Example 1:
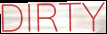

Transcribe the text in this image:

DIRTY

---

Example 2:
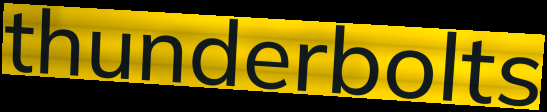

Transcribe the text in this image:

thunderbolts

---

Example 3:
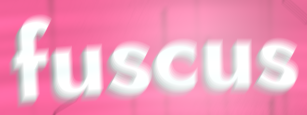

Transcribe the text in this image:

fuscus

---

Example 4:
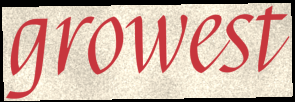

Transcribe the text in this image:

growest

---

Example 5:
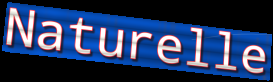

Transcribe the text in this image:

Naturelle